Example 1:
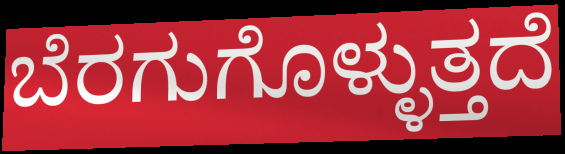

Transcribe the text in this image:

ಬೆರಗುಗೊಳ್ಳುತ್ತದೆ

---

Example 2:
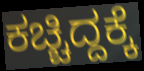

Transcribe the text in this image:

ಕಚ್ಚಿದ್ದಕ್ಕೆ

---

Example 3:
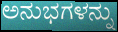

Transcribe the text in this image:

ಅನುಭಗಳನ್ನು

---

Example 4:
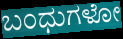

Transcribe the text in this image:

ಬಂಧುಗಳೋ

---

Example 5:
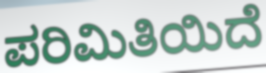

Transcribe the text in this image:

ಪರಿಮಿತಿಯಿದೆ